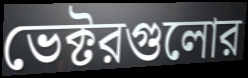
ভেক্টরগুলোর